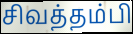
சிவத்தம்பி